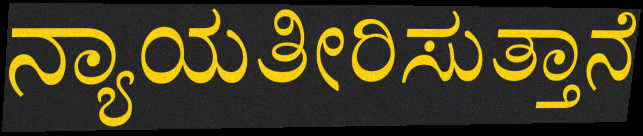
ನ್ಯಾಯತೀರಿಸುತ್ತಾನೆ